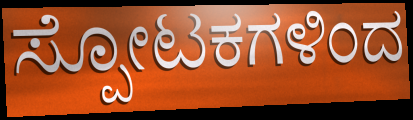
ಸ್ಪೋಟಕಗಳಿಂದ